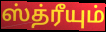
ஸ்த்ரீயும்